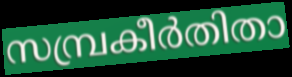
സമ്പ്രകീർതിതാ